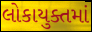
લોકાયુક્તમાં